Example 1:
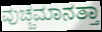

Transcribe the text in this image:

ವುಚ್ಚಮಾನತ್ತಾ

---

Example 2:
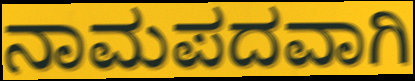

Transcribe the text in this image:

ನಾಮಪದವಾಗಿ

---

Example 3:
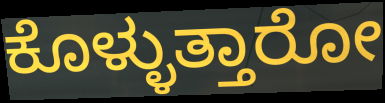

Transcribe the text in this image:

ಕೊಳ್ಳುತ್ತಾರೋ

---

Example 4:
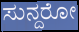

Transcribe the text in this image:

ಸುನ್ದರೋ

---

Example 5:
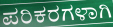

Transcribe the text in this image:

ಪರಿಕರಗಳಾಗಿ